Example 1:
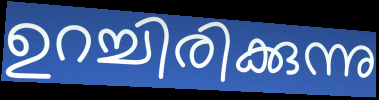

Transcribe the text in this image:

ഉറച്ചിരിക്കുന്നു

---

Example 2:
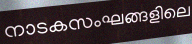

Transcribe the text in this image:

നാടകസംഘങ്ങളിലെ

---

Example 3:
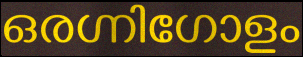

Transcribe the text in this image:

ഒരഗ്നിഗോളം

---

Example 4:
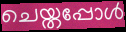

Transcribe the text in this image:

ചെയ്തപ്പോൾ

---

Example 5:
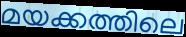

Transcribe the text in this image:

മയക്കത്തിലെ